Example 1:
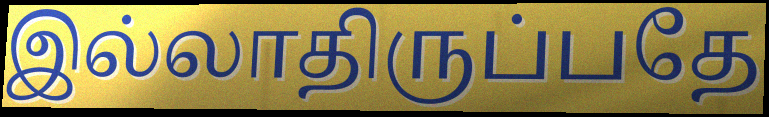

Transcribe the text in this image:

இல்லாதிருப்பதே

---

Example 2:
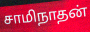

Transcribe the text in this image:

சாமிநாதன்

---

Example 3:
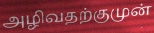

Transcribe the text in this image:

அழிவதற்குமுன்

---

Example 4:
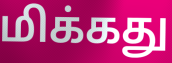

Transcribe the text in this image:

மிக்கது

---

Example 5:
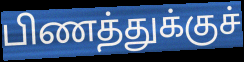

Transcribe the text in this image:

பிணத்துக்குச்